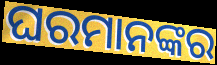
ଘରମାନଙ୍କର